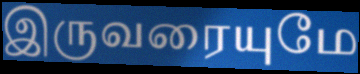
இருவரையுமே